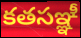
కతసఞ్ఞీ